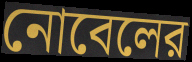
নোবেলের